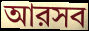
আরসব